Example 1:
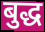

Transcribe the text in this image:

बुद्ध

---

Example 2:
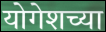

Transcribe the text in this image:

योगेशच्या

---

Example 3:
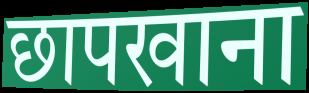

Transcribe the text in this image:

छापखाना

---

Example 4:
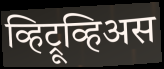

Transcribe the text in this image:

व्हिट्रूव्हिअस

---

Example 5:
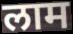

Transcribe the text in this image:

लाम